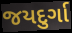
જયદુર્ગા